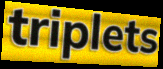
triplets